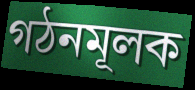
গঠনমূলক